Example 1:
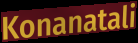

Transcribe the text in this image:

Konanatali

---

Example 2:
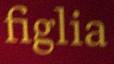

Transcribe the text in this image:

figlia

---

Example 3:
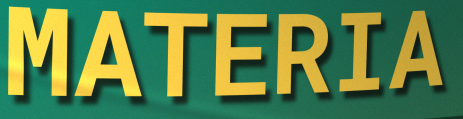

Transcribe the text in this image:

MATERIA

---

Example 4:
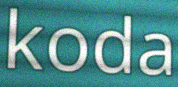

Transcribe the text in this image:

koda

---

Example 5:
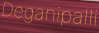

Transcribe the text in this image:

Deganipalli